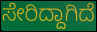
ಸೇರಿದ್ದಾಗಿದೆ